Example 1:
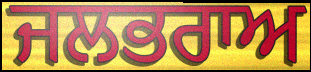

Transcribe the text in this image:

ਜਲਭਰਾਅ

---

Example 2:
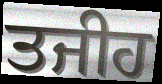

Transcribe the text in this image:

ਤਜੀਹ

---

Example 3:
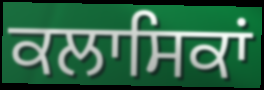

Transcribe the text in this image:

ਕਲਾਸਿਕਾਂ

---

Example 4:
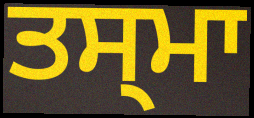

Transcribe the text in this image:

ਤਸ੍ਮਾ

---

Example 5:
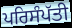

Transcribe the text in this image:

ਪਰਿਸੰਪੱਤੀ